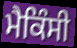
ਮੈਕਿੰਸੀ